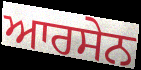
ਆਰਸੇਨ